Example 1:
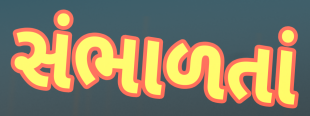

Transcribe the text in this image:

સંભાળતાં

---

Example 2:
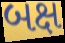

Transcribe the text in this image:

બક્ષ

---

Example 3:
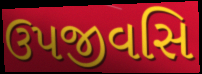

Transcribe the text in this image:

ઉપજીવસિ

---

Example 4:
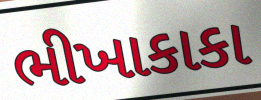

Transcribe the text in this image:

ભીખાકાકા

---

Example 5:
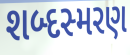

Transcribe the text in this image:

શબ્દસ્મરણ